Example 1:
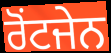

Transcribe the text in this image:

ਰੋਂਟਜੇਨ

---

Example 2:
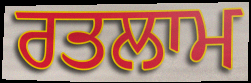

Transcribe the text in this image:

ਰਤਲਾਮ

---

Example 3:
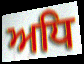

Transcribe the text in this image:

ਅਧਿ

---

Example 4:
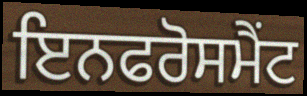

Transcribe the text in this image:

ਇਨਫਰੋਸਮੈਂਟ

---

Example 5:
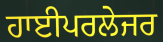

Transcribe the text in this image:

ਹਾਈਪਰਲੇਜਰ